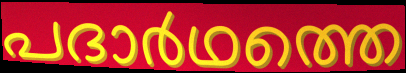
പദാർഥത്തെ